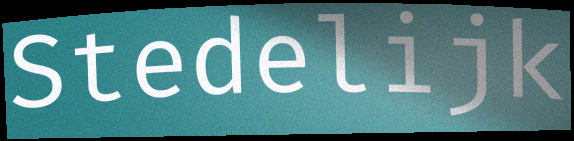
Stedelijk